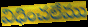
విధించలేము